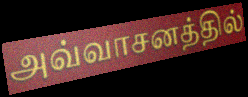
அவ்வாசனத்தில்